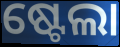
ଷ୍ଟେଲା